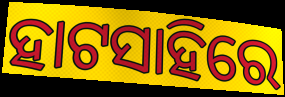
ହାଟସାହିରେ